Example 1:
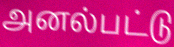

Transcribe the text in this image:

அனல்பட்டு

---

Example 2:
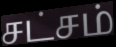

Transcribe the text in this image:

சட்சம்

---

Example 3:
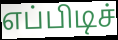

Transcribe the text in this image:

எப்பிடிச்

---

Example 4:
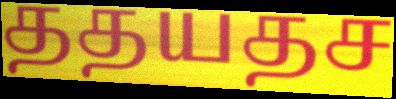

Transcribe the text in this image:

ததயதச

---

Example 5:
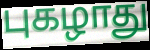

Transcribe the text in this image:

புகழாது